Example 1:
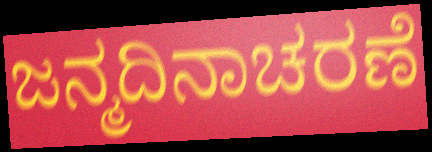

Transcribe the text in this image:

ಜನ್ಮದಿನಾಚರಣೆ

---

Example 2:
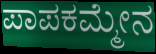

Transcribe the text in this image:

ಪಾಪಕಮ್ಮೇನ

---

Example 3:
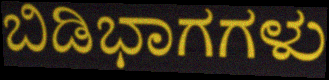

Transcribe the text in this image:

ಬಿಡಿಭಾಗಗಳು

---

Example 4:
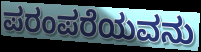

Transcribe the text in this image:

ಪರಂಪರೆಯವನು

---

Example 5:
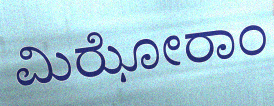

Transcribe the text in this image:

ಮಿಝೋರಾಂ